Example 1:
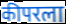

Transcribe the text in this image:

कीपरला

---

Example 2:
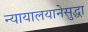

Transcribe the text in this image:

न्यायालयानेसुद्धा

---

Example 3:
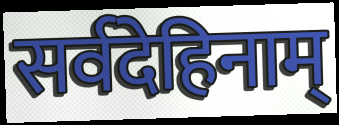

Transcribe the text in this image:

सर्वदेहिनाम्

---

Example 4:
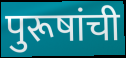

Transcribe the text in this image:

पुरूषांची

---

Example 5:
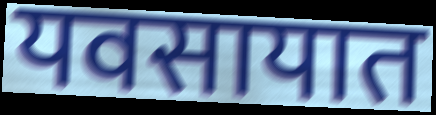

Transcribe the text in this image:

यवसायात